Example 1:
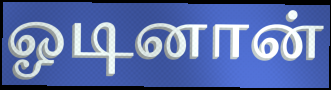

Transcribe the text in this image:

ஓடினான்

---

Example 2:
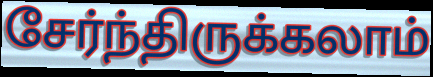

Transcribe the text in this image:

சேர்ந்திருக்கலாம்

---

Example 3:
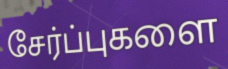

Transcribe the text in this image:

சேர்ப்புகளை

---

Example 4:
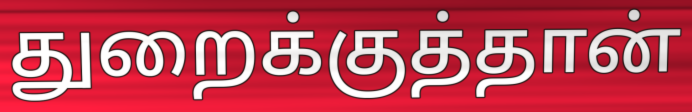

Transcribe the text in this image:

துறைக்குத்தான்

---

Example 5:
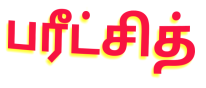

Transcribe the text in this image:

பரீட்சித்